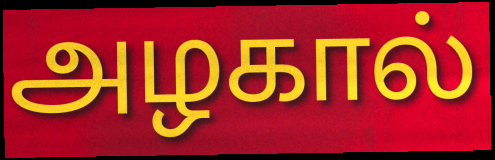
அழகால்